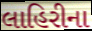
લાહિરીના